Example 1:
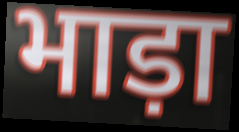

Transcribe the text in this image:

भाड़ा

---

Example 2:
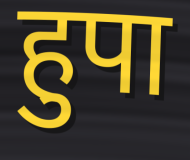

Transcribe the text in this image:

हुपा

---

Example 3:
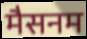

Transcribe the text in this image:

मैसनम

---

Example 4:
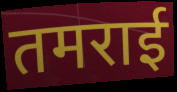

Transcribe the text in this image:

तमराई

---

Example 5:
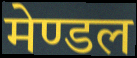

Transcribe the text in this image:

मेण्डल